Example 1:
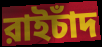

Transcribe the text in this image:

রাইচাঁদ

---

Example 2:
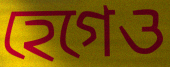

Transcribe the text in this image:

হেগেও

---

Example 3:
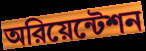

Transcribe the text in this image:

অরিয়েন্টেশন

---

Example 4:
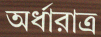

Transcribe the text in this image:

অর্ধারাত্র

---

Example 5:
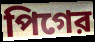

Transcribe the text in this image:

পিগের